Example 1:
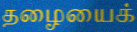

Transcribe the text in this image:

தழையைக்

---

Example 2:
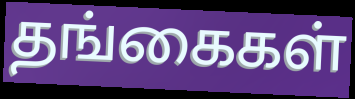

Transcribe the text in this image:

தங்கைகள்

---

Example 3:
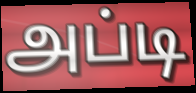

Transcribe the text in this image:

அப்டி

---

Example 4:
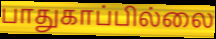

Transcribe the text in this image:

பாதுகாப்பில்லை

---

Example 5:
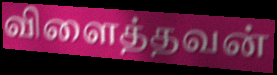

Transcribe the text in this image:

விளைத்தவன்